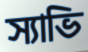
স্যাভি